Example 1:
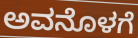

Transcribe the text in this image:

ಅವನೊಳಗೆ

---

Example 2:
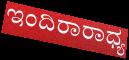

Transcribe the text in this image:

ಇಂದಿರಾರಾಧ್ಯ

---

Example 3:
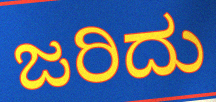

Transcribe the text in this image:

ಜರಿದು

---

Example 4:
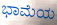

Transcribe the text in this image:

ಭಾಮೆಯ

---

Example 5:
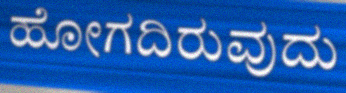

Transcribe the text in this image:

ಹೋಗದಿರುವುದು